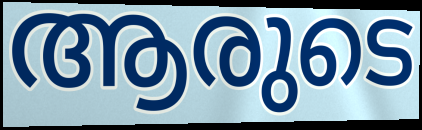
ആരുടെ